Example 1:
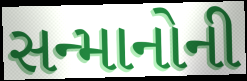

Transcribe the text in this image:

સન્માનોની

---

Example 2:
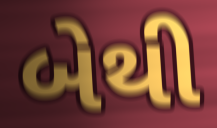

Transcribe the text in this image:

બેથી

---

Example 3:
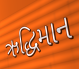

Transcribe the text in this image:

ઋદ્ધિમાન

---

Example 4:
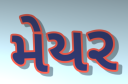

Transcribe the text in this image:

મેયર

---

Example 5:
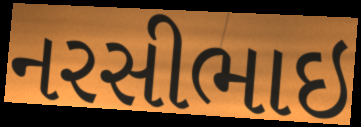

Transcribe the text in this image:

નરસીભાઇ